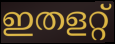
ഇതളറ്റ്